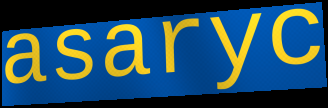
asaryc